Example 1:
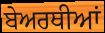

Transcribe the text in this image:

ਬੇਅਰਥੀਆਂ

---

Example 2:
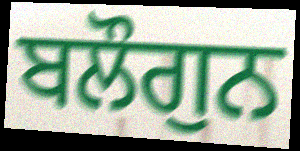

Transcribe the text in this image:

ਬਲੌਗੁਨ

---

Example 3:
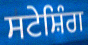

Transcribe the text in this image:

ਸਟੇਸ਼ਿੰਗ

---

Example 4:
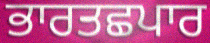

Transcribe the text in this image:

ਭਾਰਤਛਪਾਰ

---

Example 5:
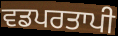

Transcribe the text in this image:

ਵਡਪਰਤਾਪੀ